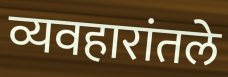
व्यवहारांतले